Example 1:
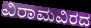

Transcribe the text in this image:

ವಿರಾಮವಿರದ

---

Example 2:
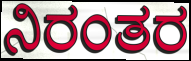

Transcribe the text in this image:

ನಿರಂತರ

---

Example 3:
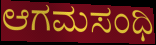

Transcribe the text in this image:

ಆಗಮಸಂಧಿ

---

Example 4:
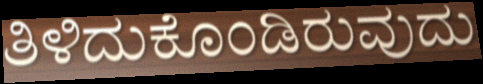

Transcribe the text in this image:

ತಿಳಿದುಕೊಂಡಿರುವುದು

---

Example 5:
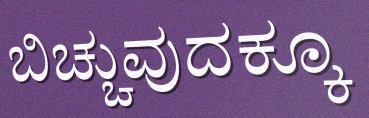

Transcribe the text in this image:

ಬಿಚ್ಚುವುದಕ್ಕೂ